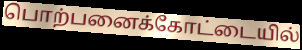
பொற்பனைக்கோட்டையில்